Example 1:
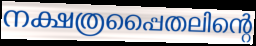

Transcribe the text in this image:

നക്ഷത്രപ്പൈതലിന്റെ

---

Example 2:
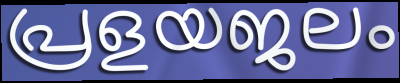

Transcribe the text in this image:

പ്രളയജലം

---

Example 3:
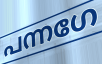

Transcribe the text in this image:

പന്നഗേ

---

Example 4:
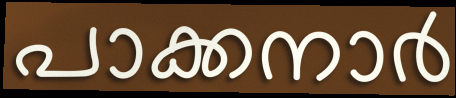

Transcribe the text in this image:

പാക്കനാർ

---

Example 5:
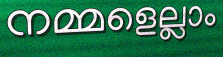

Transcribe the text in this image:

നമ്മളെല്ലാം